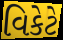
વિકેટે